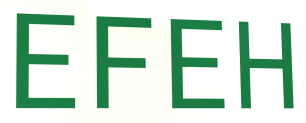
EFEH